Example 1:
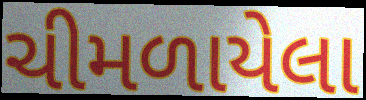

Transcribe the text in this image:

ચીમળાયેલા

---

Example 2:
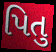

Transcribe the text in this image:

પિતુ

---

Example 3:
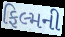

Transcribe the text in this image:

ફિલ્મની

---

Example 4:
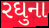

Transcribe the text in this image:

રઘુના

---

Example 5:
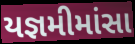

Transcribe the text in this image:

યજ્ઞમીમાંસા